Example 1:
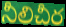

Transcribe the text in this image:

నీలిచీర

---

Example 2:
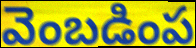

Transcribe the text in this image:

వెంబడింప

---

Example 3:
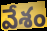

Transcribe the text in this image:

వేశం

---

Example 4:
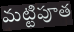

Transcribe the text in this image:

మట్టిపూత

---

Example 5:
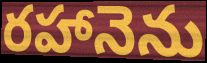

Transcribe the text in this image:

రహానెను